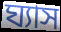
ঘ্যাস